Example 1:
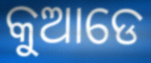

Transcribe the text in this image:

କୁଆଡେ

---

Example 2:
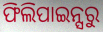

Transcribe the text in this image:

ଫିଲିପାଇନ୍ସରୁ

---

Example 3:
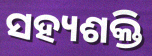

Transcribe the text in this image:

ସହ୍ୟଶକ୍ତି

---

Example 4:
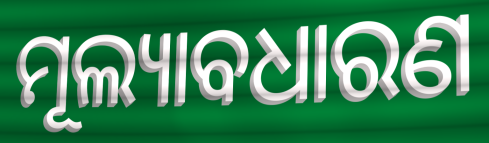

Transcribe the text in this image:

ମୂଲ୍ୟାବଧାରଣ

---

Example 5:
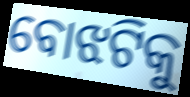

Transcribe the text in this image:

ବୋଝଟିକୁ